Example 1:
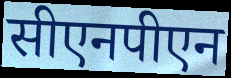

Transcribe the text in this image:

सीएनपीएन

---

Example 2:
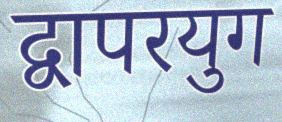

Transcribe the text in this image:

द्वापरयुग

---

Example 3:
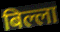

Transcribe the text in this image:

बिल्ला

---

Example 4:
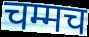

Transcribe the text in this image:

चम्मच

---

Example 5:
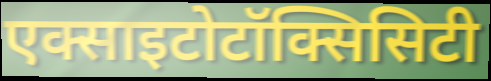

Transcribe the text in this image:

एक्साइटोटॉक्सिसिटी